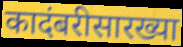
कादंबरीसारख्या